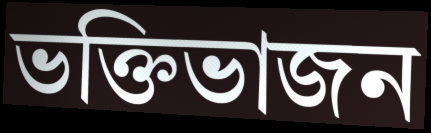
ভক্তিভাজন